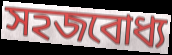
সহজবোধ্য